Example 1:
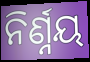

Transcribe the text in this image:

ନିର୍ଣ୍ନୟ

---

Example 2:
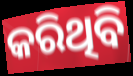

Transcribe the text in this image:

କରିଥିବି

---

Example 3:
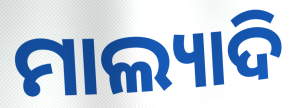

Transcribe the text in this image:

ମାଲ୍ୟାଦି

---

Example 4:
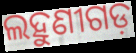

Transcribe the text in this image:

ଲହୁଣୀଗଡ଼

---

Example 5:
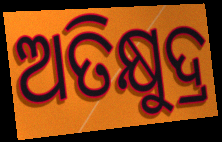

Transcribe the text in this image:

ଅତିକ୍ଷୁଦ୍ର